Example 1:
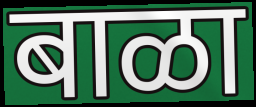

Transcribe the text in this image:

बाळा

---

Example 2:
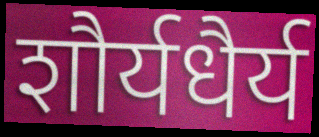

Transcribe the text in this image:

शौर्यधैर्य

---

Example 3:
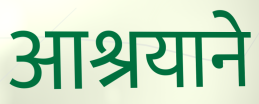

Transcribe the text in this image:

आश्रयाने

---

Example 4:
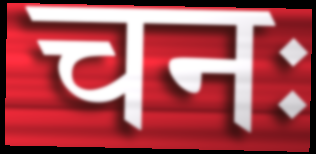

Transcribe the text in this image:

चनः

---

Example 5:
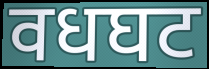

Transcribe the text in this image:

वधघट